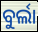
ବୁର୍ଲା